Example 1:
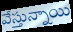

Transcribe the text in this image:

వేస్తున్నాయి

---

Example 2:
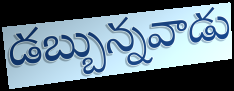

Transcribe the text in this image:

డబ్బున్నవాడు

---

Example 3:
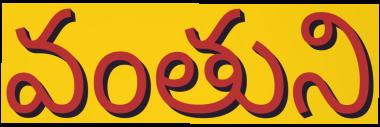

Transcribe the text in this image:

వంతుని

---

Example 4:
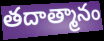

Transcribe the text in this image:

తదాత్మానం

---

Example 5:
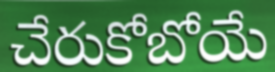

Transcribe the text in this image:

చేరుకోబోయే